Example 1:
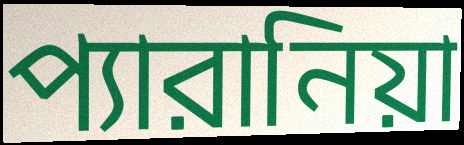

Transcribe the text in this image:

প্যারানিয়া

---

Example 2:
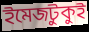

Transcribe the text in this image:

ইমেজটুকুই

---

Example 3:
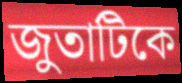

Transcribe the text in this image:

জুতাটিকে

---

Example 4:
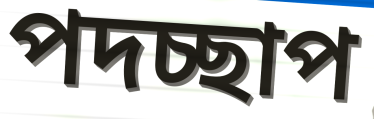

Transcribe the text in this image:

পদচ্ছাপ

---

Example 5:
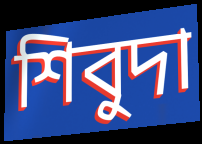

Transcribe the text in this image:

শিবুদা